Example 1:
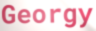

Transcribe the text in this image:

Georgy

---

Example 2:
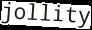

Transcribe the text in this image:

jollity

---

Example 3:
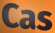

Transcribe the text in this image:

Cas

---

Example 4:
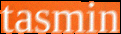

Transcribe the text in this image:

tasmin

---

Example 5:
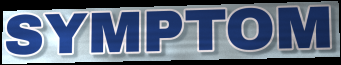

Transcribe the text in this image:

SYMPTOM